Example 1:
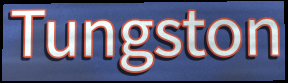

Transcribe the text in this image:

Tungston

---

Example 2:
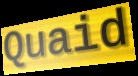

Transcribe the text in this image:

Quaid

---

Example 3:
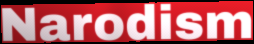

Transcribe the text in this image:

Narodism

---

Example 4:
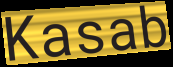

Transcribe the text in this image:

Kasab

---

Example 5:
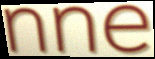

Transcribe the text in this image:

nne